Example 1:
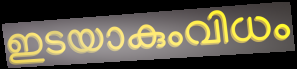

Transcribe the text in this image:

ഇടയാകുംവിധം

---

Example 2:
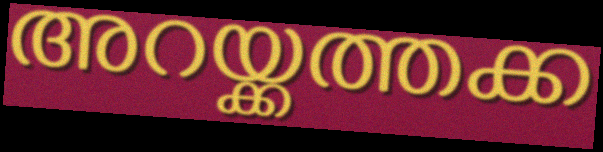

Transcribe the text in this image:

അറയ്ക്കത്തക്ക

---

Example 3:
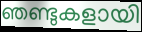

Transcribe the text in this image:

ഞണ്ടുകളായി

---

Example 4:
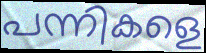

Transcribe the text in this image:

പന്നികളെ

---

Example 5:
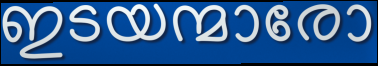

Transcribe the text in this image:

ഇടയന്മാരോ